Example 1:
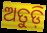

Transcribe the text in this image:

ଅତୁଡ଼ି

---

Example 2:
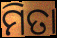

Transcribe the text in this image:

ମିତା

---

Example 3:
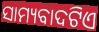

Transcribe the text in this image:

ସାମ୍ୟବାଦଟିଏ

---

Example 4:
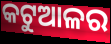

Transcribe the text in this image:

କଟୁଆଳର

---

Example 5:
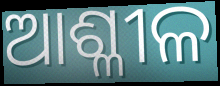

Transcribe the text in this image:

ଆଶ୍ଳୀଳ